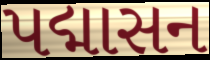
પદ્માસન